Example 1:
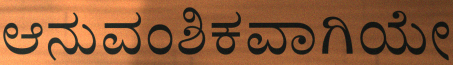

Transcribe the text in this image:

ಆನುವಂಶಿಕವಾಗಿಯೇ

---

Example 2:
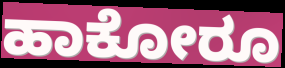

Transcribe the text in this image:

ಹಾಕೋರೂ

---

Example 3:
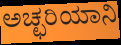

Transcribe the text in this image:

ಅಚ್ಛರಿಯಾನಿ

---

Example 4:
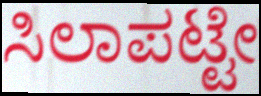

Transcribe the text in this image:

ಸಿಲಾಪಟ್ಟೇ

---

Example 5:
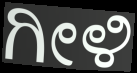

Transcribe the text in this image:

ಗೀಳಿ